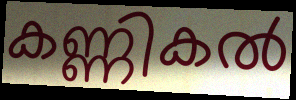
കണ്ണികൽ